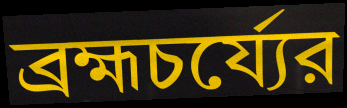
ব্রহ্মচর্য্যের